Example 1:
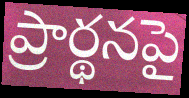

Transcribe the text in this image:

ప్రార్థనపై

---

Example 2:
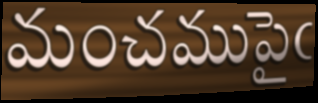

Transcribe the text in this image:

మంచముపైఁ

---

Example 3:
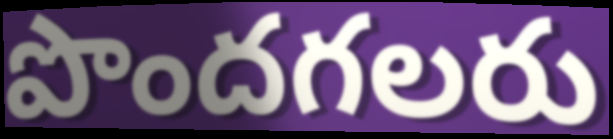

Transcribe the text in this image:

పొందగలరు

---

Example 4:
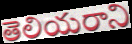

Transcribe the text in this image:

తెలియరాని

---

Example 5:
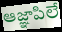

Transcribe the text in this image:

ఆజ్ఞాపిలే